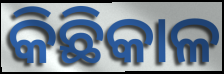
କିଛିକାଳ